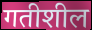
गतीशील